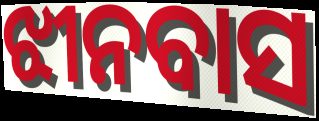
ଝୀନବାସ